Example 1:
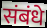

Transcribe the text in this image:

संबंधे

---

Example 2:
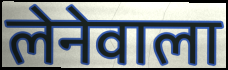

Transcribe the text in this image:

लेनेवाला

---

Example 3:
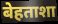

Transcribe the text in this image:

बेहताशा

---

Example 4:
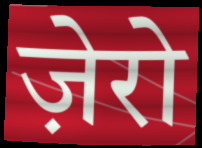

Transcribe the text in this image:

ज़ेरो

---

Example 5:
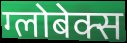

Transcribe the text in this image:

ग्लोबेक्स